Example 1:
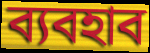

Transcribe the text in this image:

ব্যবহাব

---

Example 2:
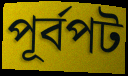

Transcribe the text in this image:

পূর্বপট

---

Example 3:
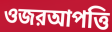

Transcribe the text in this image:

ওজরআপত্তি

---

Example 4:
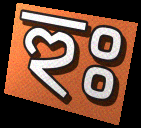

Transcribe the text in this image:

হুঃ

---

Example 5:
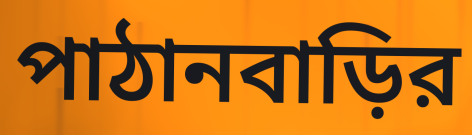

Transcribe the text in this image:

পাঠানবাড়ির